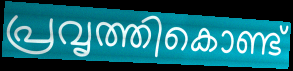
പ്രവൃത്തികൊണ്ട്